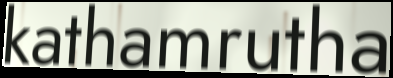
kathamrutha